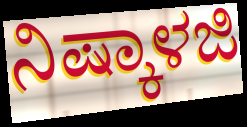
ನಿಷ್ಕಾಳಜಿ